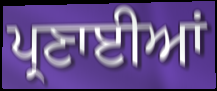
ਪ੍ਰਣਾਈਆਂ